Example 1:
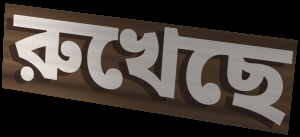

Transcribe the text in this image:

রুখেছে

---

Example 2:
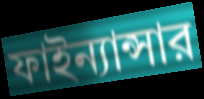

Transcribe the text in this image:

ফাইন্যান্সার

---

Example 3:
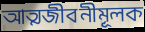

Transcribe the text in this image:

আত্মজীবনীমূলক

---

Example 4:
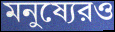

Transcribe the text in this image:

মনুষ্যেরও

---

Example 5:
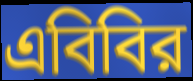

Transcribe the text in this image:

এবিবির